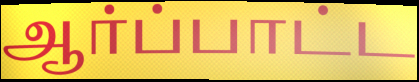
ஆர்ப்பாட்ட